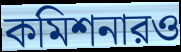
কমিশনারও